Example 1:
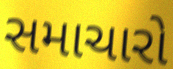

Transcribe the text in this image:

સમાચારો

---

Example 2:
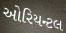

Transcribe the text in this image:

ઓરિયન્ટલ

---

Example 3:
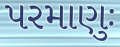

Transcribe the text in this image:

પરમાણુઃ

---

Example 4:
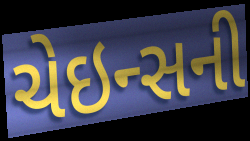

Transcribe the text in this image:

ચેઇન્સની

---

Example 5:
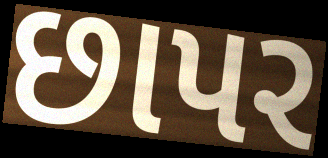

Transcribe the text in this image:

છાપર